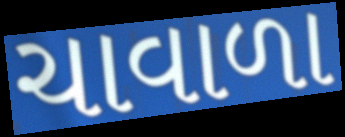
ચાવાળા